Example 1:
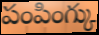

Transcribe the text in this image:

పంపింగ్కు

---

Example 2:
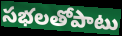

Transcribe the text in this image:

సభలతోపాటు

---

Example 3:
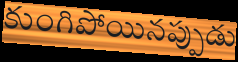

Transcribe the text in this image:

కుంగిపోయినప్పుడు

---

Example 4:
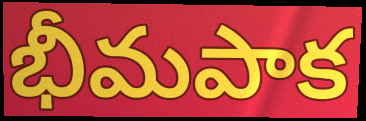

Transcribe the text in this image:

భీమపాక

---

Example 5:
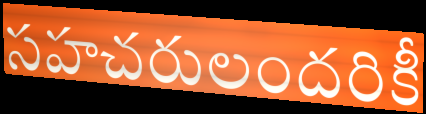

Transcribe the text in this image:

సహచరులందరికీ